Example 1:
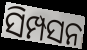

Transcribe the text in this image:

ସିମ୍ପସନ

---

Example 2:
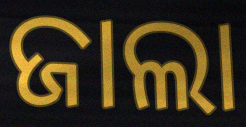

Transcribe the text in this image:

ଜାଲା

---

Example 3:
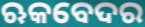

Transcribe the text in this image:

ଋକବେଦର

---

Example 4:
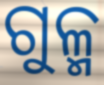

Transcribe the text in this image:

ଗୁଳ୍ମ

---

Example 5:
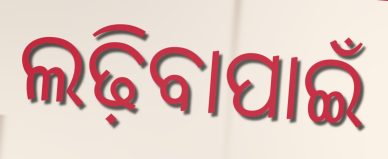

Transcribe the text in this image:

ଲଢ଼ିବାପାଇଁ